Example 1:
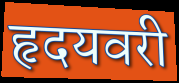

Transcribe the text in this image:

हृदयवरी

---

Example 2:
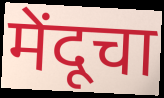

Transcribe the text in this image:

मेंदूचा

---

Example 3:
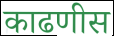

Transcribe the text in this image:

काढणीस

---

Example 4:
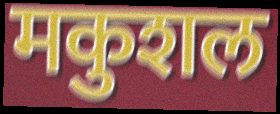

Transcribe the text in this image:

मकुशल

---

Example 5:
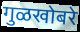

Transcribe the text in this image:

गुळखोबरे